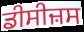
ਡੀਸੀਜ਼ਸ